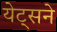
येट्सने